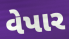
વેપાર